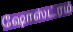
ஷோஸ்ட்ரம்